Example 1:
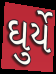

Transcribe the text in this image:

ઘુર્યે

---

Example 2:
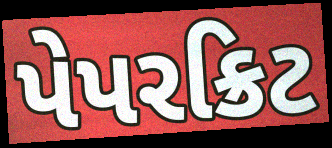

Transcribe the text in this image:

પેપરક્રિટ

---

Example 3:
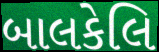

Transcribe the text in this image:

બાલકેલિ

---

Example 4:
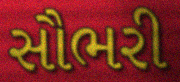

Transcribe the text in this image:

સૌભરી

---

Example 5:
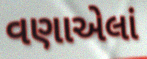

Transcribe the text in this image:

વણાએલાં